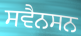
ਸਵੈਨਸਨ